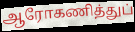
ஆரோகணித்துப்